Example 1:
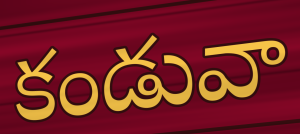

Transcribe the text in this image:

కండువా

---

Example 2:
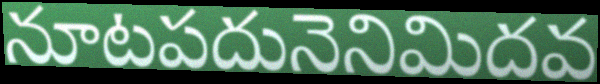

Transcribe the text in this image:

నూటపదునెనిమిదవ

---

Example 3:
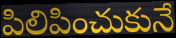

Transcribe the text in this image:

పిలిపించుకునే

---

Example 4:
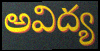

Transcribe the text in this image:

అవిద్య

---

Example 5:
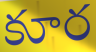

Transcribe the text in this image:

కూర